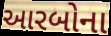
આરબોના